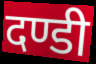
दण्डी